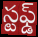
స్టఫ్డ్